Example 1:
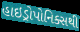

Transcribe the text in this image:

હાઇડ્રોપોનિક્સથી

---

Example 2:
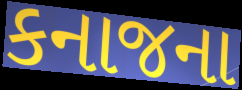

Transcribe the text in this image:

કનાજના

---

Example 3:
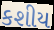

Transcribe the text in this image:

કશીય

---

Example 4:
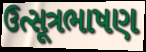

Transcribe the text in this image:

ઉત્સૂત્રભાષણ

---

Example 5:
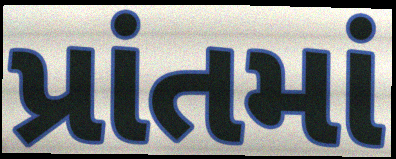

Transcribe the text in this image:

પ્રાંતમાં